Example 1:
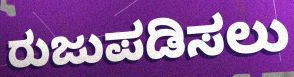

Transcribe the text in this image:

ರುಜುಪಡಿಸಲು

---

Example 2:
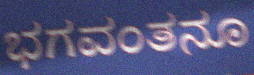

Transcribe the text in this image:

ಭಗವಂತನೂ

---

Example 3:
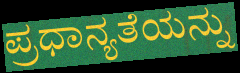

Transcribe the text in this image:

ಪ್ರಧಾನ್ಯತೆಯನ್ನು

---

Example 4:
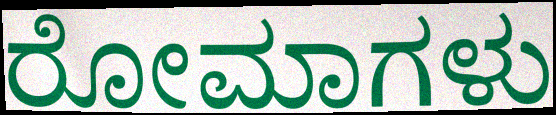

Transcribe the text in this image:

ರೋಮಾಗಳು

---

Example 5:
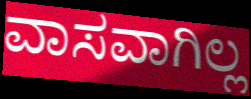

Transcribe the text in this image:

ವಾಸವಾಗಿಲ್ಲ